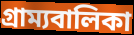
গ্রাম্যবালিকা